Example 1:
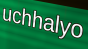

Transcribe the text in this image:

uchhalyo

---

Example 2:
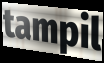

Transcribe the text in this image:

tampil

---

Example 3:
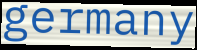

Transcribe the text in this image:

germany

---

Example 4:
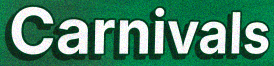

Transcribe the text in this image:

Carnivals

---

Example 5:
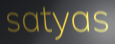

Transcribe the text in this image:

satyas